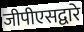
जीपीएसद्वारे